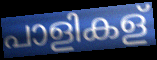
പാളികള്